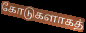
கோடுகளாகத்